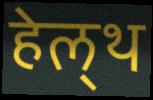
हेल्थ